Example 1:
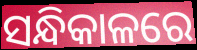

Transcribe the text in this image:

ସନ୍ଧିକାଳରେ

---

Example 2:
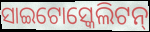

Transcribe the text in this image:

ସାଇଟୋସ୍କେଲିଟନ୍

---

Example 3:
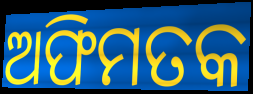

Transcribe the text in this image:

ଅଫିମତକ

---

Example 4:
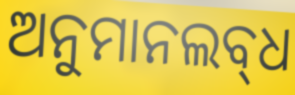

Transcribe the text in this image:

ଅନୁମାନଲବ୍‌ଧ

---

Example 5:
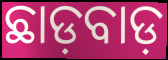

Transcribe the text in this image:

ଛାଡ଼ବାଡ଼